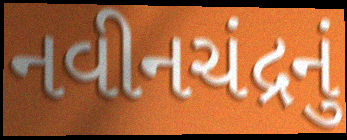
નવીનચંદ્રનું